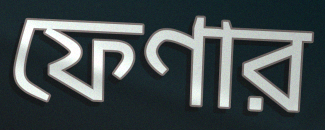
ফেণার